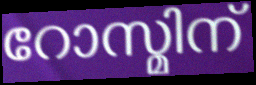
റോസ്മിന്